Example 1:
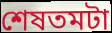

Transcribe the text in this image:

শেষতমটা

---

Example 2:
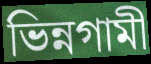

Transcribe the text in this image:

ভিন্নগামী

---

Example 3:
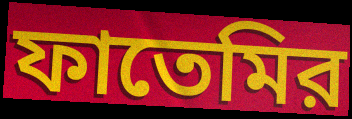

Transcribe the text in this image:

ফাতেমির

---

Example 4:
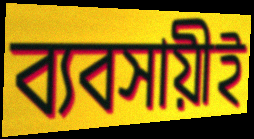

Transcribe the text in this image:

ব্যবসায়ীই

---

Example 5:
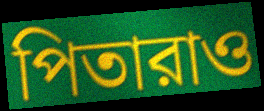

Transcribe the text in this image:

পিতারাও